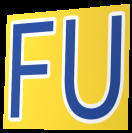
FU